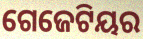
ଗେଜେଟିୟର